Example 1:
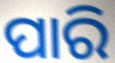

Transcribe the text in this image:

ପାରି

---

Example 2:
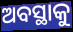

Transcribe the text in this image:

ଅବସ୍ଥାକୁ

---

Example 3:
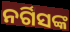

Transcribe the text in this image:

ନର୍ଗିସଙ୍କ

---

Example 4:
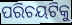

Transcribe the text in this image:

ପରିଚୟଟିକୁ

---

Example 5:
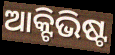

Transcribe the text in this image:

ଆକ୍ଟିଭିଷ୍ଟ